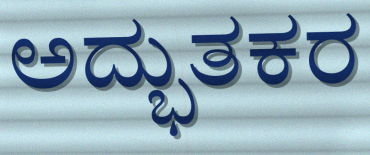
ಅದ್ಭುತಕರ